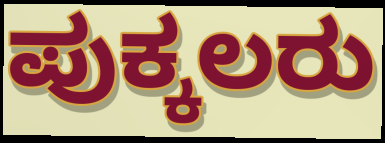
ಪುಕ್ಕಲರು